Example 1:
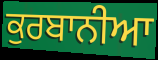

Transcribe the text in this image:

ਕੁਰਬਾਨੀਆ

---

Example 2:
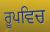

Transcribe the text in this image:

ਰੂਪਵਿਚ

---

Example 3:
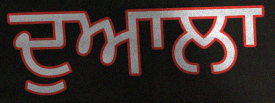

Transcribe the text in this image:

ਦੁਆਲਾ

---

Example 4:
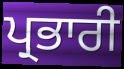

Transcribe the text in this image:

ਪ੍ਰਭਾਰੀ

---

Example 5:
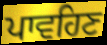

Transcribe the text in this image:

ਪਾਵਹਿਣ